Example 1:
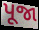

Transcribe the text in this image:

પૂજા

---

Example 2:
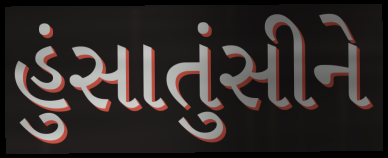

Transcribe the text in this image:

હુંસાતુંસીને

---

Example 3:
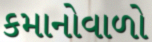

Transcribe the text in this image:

કમાનોવાળો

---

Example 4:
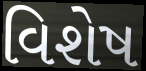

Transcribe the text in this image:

વિશેષ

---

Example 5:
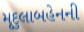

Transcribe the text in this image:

મૃદુલાબહેનની